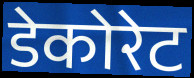
डेकोरेट